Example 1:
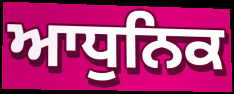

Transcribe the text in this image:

ਆਧੁਨਿਕ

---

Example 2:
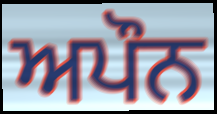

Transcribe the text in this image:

ਅਪੌਨ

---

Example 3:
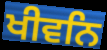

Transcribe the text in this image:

ਖੀਵਨਿ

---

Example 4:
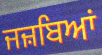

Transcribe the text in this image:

ਜਜ਼ਬਿਆਂ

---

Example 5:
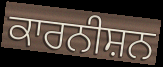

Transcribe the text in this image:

ਕਾਰਨੀਸ਼ਨ